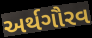
અર્થગૌરવ